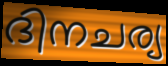
ദിനചര്യ